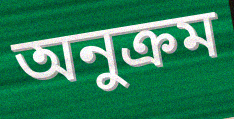
অনুক্রম